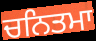
ਚਨਿਤਮਾ